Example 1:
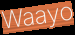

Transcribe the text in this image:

Waayo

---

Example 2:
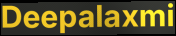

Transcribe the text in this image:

Deepalaxmi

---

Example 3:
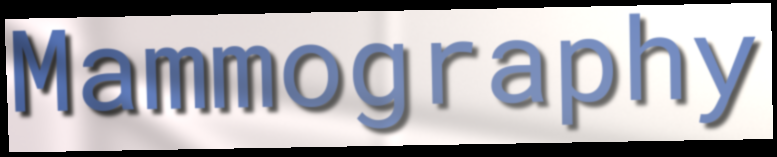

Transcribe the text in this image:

Mammography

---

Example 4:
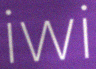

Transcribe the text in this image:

iwi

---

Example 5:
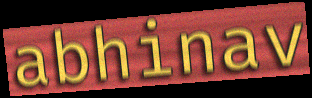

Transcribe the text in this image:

abhinav